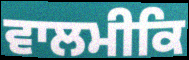
ਵਾਲਮੀਕਿ